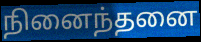
நினைந்தனை